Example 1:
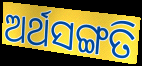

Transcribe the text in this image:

ଅର୍ଥସଙ୍ଗତି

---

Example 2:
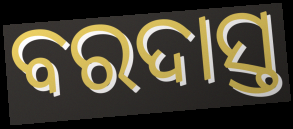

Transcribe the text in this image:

ବରଦାସ୍ତ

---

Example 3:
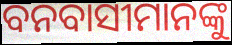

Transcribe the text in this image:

ବନବାସୀମାନଙ୍କୁ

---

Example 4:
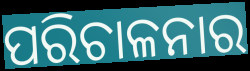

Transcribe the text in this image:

ପରିଚାଳନାର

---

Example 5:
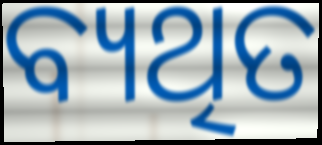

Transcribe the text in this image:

ବ୍ୟଥିତ